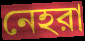
নেহরা